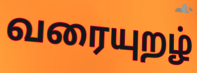
வரையுறழ்